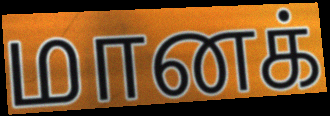
மானக்